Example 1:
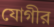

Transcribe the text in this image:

যোগীর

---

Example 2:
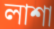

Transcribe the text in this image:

লাশা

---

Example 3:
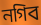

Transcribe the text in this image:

নগিব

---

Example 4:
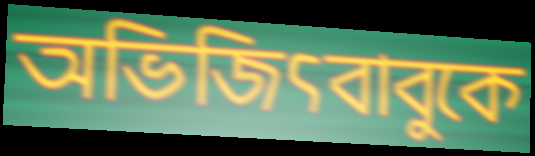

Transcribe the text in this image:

অভিজিৎবাবুকে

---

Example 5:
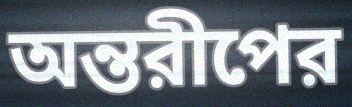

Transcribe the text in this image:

অন্তরীপের